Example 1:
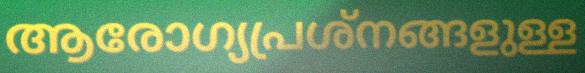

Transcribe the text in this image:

ആരോഗ്യപ്രശ്നങ്ങളുള്ള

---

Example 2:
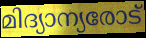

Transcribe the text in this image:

മിദ്യാന്യരോട്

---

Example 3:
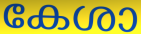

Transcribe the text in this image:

കേശാ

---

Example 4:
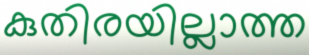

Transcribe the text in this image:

കുതിരയില്ലാത്ത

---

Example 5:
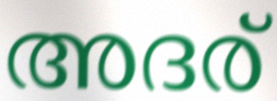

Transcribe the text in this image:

അദര്